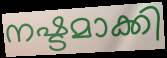
നഷ്ടമാക്കി